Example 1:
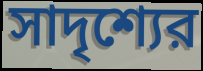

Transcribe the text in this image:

সাদৃশ্যের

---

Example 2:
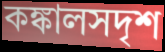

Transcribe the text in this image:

কঙ্কালসদৃশ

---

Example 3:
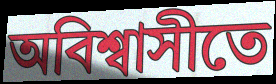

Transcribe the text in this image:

অবিশ্বাসীতে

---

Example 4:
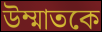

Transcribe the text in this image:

উম্মাতকে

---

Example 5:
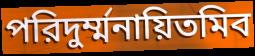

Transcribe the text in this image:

পরিদুর্ম্মনায়িতমিব